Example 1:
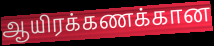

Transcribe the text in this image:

ஆயிரக்கணக்கான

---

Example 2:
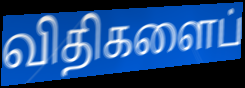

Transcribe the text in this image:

விதிகளைப்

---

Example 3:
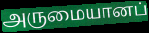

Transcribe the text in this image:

அருமையானப்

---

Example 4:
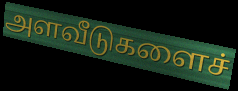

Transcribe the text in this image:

அளவீடுகளைச்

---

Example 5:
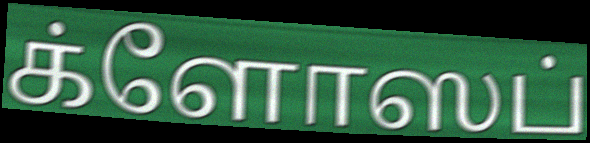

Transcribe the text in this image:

க்ளோஸப்